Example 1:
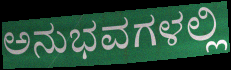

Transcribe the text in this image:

ಅನುಭವಗಳಲ್ಲಿ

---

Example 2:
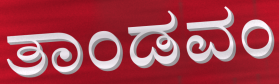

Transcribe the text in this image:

ತಾಂಡವಂ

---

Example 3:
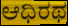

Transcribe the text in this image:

ಆಧಿರಥ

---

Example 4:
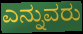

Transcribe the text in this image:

ಎನ್ನುವರು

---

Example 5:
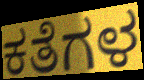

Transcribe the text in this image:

ಕತೆಗಳ